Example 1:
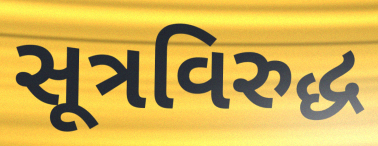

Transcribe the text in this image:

સૂત્રવિરુદ્ધ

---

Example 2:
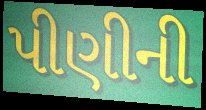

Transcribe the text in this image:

પીણીની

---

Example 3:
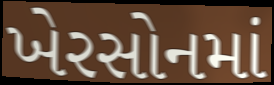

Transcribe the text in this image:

ખેરસોનમાં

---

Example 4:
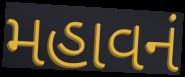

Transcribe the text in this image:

મહાવનં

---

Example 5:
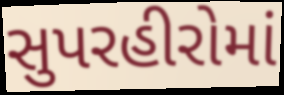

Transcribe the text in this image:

સુપરહીરોમાં